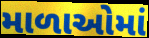
માળાઓમાં